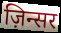
ज़िन्सर